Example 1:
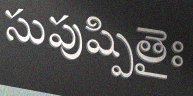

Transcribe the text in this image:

సుపుష్పితైః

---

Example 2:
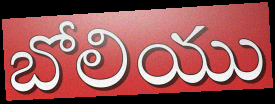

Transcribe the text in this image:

బోలియు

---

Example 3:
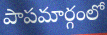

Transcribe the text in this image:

పాపమార్గంలో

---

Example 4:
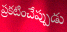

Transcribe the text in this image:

ప్రకటించేప్పుడు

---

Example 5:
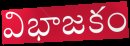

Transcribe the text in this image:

విభాజకం